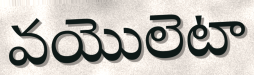
వయొలెటా